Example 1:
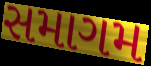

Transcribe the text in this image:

સમાગમ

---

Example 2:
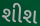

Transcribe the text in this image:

શીશ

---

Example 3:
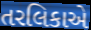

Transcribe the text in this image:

તરલિકાએ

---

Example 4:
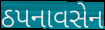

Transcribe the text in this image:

ઠપનાવસેન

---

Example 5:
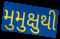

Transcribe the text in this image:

મુમુક્ષુથી